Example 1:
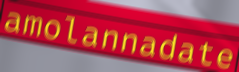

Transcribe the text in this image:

amolannadate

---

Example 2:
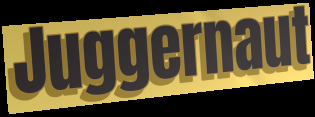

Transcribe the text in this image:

Juggernaut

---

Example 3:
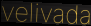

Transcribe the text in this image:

velivada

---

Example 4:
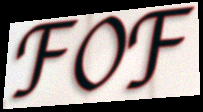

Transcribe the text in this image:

FOF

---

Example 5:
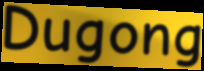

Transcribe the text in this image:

Dugong